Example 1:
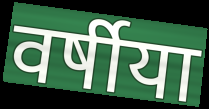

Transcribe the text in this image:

वर्षीया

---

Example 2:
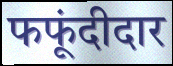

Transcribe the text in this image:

फफूंदीदार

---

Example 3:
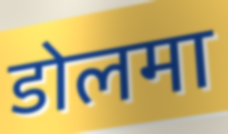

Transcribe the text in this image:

डोलमा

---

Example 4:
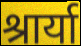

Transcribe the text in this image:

श्रार्या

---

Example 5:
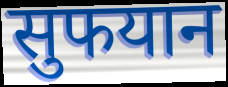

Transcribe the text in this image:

सुफयान